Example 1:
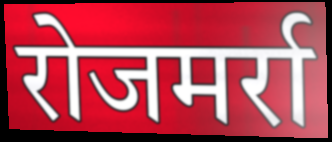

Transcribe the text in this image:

रोजमर्रा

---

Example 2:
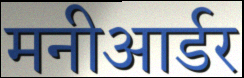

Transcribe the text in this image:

मनीआर्डर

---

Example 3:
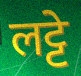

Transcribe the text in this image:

लट्टे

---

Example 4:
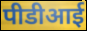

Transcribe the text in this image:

पीडीआई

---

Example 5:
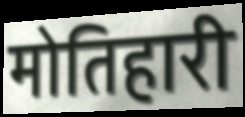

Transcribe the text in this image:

मोतिहारी